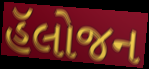
હૅલોજન